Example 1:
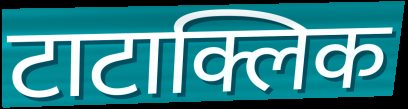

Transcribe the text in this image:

टाटाक्लिक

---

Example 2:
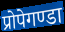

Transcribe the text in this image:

प्रोपेगण्डा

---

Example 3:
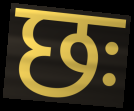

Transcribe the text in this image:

छः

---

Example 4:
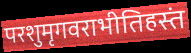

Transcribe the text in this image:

परशुमृगवराभीतिहस्तं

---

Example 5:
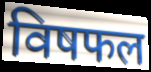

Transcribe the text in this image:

विषफल